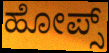
ಹೋಪ್ಸ್